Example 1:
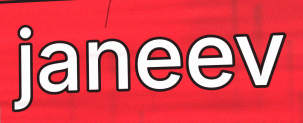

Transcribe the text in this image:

janeev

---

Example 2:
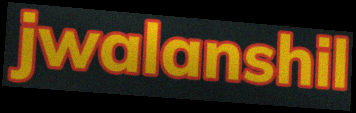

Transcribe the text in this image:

jwalanshil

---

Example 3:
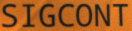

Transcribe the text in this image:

SIGCONT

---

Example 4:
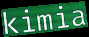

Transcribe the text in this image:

kimia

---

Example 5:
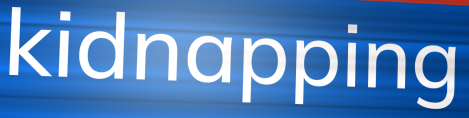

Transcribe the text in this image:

kidnapping